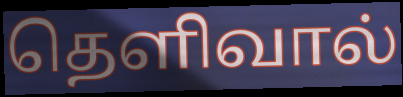
தெளிவால்